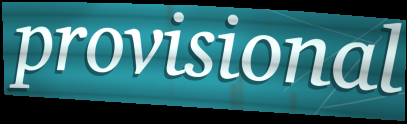
provisional